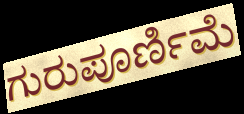
ಗುರುಪೂರ್ಣಿಮೆ